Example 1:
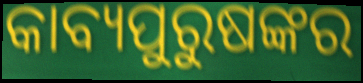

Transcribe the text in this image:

କାବ୍ୟପୁରୁଷଙ୍କର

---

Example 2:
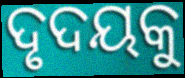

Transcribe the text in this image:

ଦୃଦୟକୁ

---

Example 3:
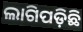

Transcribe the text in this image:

ଲାଗିପଡ଼ିଛି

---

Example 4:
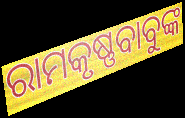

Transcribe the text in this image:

ରାମକୃଷ୍ଣବାବୁଙ୍କ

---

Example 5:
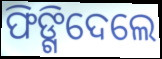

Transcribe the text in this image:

ଫିଙ୍ଗିଦେଲେ